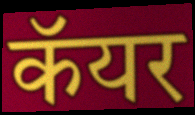
कॅयर